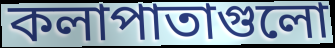
কলাপাতাগুলো